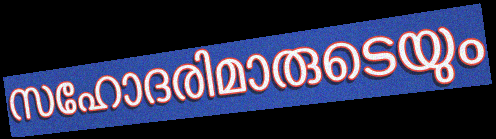
സഹോദരിമാരുടെയും